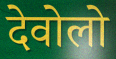
देवोलो